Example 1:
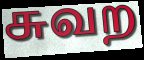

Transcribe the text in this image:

சுவற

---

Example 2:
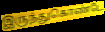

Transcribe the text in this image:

இருந்துகொண்டே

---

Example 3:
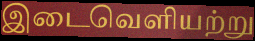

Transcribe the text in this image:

இடைவெளியற்று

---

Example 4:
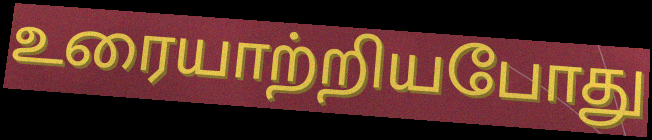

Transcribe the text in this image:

உரையாற்றியபோது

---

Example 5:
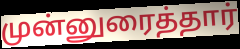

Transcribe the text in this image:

முன்னுரைத்தார்